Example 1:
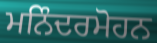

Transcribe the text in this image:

ਮਨਿੰਦਰਮੋਹਨ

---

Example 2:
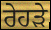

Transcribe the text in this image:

ਰੇਹੜੇ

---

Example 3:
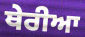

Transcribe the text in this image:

ਥੇਰੀਆ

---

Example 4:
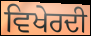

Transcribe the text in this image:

ਵਿਖੇਰਦੀ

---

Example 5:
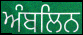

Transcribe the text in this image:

ਅੰਬਲਿਨ